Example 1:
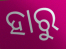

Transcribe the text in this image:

ହାରୁ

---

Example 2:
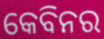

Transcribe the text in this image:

କେବିନର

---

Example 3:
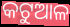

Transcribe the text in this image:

କଟୁଆଳ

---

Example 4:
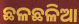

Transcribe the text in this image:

ଛଳଛଳିଆ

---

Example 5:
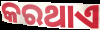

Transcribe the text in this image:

କରଥାଏ